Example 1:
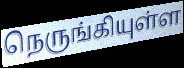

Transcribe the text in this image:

நெருங்கியுள்ள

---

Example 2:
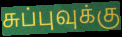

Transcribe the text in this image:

சுப்புவுக்கு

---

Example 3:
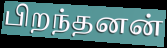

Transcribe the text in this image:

பிறந்தனன்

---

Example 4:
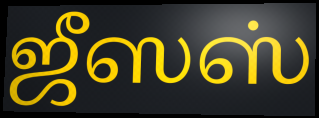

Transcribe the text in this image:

ஜீஸஸ்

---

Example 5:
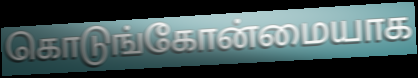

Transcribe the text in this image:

கொடுங்கோன்மையாக